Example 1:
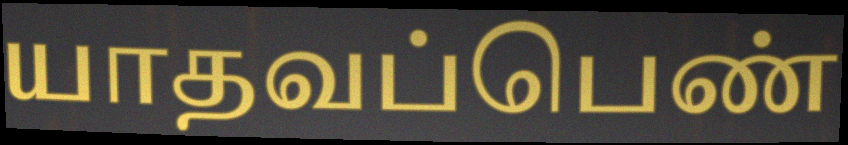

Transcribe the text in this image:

யாதவப்பெண்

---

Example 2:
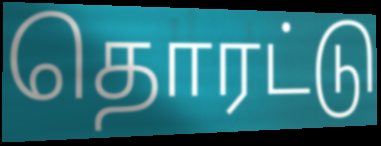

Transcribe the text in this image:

தொரட்டு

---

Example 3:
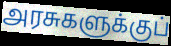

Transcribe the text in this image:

அரசுகளுக்குப்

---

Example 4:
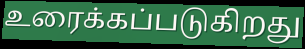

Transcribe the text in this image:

உரைக்கப்படுகிறது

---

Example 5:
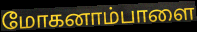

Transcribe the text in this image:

மோகனாம்பாளை